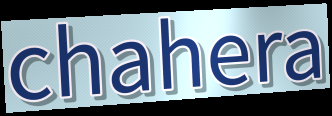
chahera